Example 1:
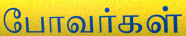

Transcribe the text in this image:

போவர்கள்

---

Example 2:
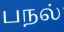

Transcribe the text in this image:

பநல்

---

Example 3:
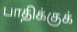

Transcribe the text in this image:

பாதிக்குக்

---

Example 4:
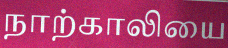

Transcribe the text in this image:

நாற்காலியை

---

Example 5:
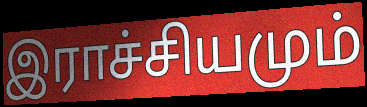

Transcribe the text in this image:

இராச்சியமும்